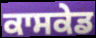
ਕਾਸਕੇਡ